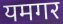
यमगर